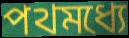
পথমধ্যে